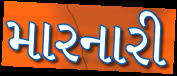
મારનારી